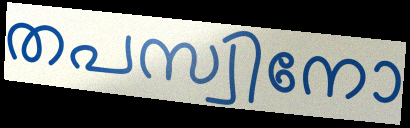
തപസ്വിനോ